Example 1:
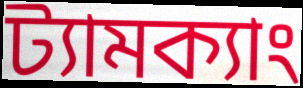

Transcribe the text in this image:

ট্যামক্যাং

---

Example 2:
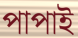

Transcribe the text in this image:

পাপাই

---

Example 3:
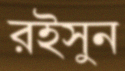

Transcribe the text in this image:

রইসুন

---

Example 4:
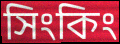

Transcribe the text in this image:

সিংকিং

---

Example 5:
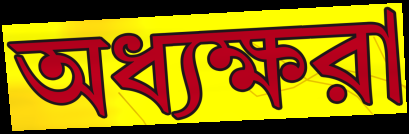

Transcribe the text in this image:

অধ্যক্ষরা